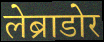
लेब्राडोर